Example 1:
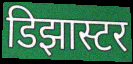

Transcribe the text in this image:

डिझास्टर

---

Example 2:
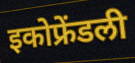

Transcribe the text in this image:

इकोफ्रेंडली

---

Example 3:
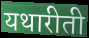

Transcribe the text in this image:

यथारीती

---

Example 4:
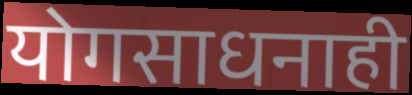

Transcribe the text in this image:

योगसाधनाही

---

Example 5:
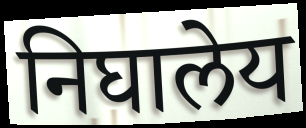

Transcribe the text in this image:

निघालेय